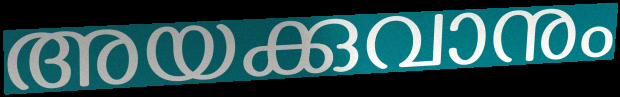
അയക്കുവാനും